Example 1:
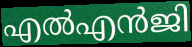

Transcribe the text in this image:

എൽഎൻജി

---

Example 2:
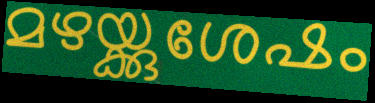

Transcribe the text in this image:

മഴയ്ക്കുശേഷം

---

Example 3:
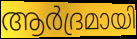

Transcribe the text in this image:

ആർദ്രമായി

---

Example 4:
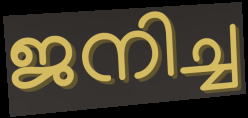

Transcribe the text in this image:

ജനിച്ച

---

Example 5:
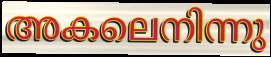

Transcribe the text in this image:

അകലെനിന്നു